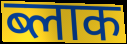
ब्लाक